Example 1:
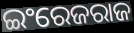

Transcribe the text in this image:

ଇଂରେଜରାଜ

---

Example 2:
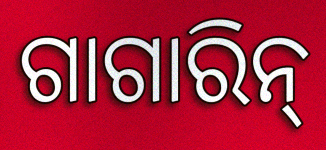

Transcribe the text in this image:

ଗାଗାରିନ୍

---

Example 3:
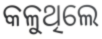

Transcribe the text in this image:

କଳୁଥିଲେ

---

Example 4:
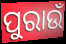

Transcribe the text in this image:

ପୁରାଉଁ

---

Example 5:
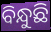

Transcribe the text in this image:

ବିନ୍ଧୁଛି